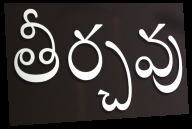
తీర్చవు